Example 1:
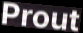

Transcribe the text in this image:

Prout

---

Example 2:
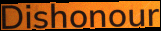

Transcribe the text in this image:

Dishonour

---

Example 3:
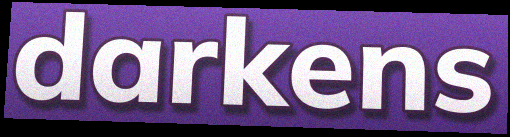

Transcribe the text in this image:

darkens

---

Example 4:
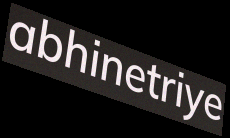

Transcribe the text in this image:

abhinetriye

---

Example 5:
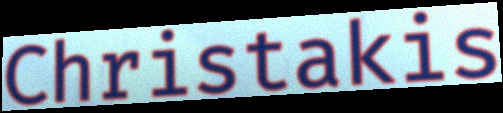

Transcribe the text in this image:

Christakis